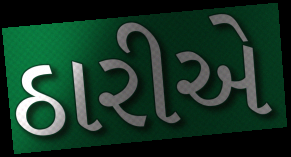
ઠારીએ